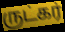
ருட்கர்